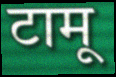
टामू